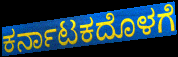
ಕರ್ನಾಟಕದೊಳಗೆ